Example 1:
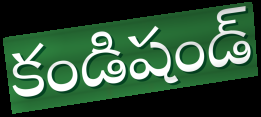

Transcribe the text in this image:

కండిషండ్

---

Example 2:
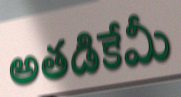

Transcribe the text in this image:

అతడికేమీ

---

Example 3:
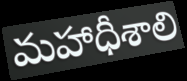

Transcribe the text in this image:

మహాధీశాలి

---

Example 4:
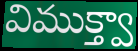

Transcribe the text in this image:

విముక్త్వా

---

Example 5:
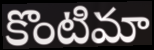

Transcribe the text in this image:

కొంటిమా